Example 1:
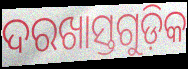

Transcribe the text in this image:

ଦରଖାସ୍ତଗୁଡ଼ିକ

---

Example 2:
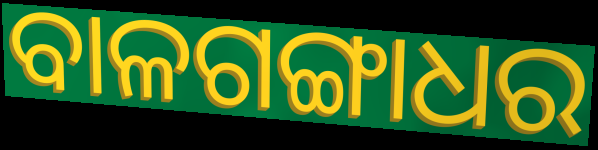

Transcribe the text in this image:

ବାଳଗଙ୍ଗାଧର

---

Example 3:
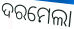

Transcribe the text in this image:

ଦରମେଲା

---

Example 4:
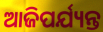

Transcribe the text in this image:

ଆଜିପର୍ଯ୍ୟନ୍ତ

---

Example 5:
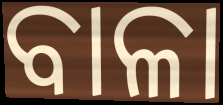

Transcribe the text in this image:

ବାଳା